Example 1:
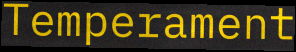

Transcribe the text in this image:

Temperament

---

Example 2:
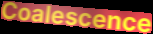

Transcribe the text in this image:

Coalescence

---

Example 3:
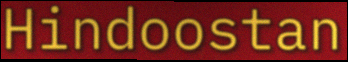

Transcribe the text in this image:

Hindoostan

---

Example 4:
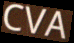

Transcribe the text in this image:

CVA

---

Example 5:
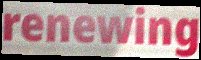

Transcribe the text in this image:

renewing